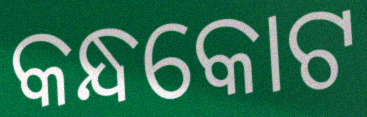
କନ୍ଧକୋଟ